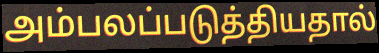
அம்பலப்படுத்தியதால்